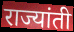
राज्यांती